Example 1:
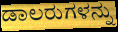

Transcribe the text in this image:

ಡಾಲರುಗಳನ್ನು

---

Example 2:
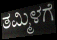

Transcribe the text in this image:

ತಮ್ಮಿಳಗೆ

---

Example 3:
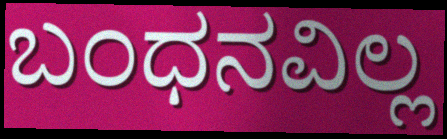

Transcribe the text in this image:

ಬಂಧನವಿಲ್ಲ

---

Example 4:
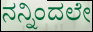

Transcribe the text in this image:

ನನ್ನಿಂದಲೇ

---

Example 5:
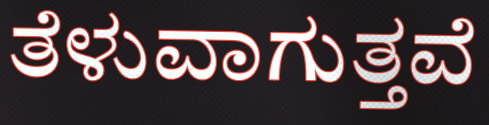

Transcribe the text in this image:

ತೆಳುವಾಗುತ್ತವೆ